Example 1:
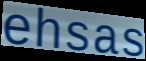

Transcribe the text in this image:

ehsas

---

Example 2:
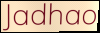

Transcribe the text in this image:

Jadhao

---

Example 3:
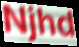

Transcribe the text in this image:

Njhd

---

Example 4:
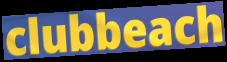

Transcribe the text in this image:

clubbeach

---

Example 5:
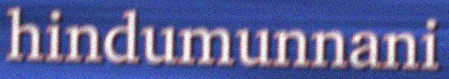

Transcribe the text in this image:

hindumunnani